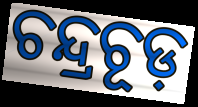
ଚନ୍ଦ୍ରଚୂଡ଼